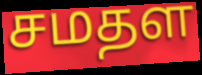
சமதள